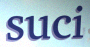
suci